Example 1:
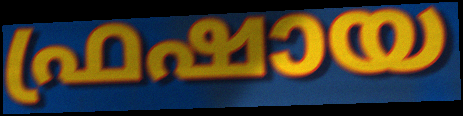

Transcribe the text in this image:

ഫ്രഷായ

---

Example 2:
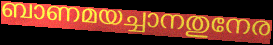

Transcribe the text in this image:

ബാണമയച്ചാനതുനേര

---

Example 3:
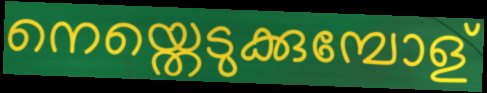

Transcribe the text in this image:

നെയ്തെടുക്കുമ്പോള്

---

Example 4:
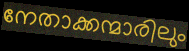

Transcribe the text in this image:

നേതാക്കന്മാരിലും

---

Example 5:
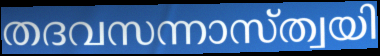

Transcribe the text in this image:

തദവസന്നാസ്ത്വയി